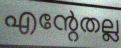
എന്റേതല്ല